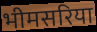
भीमसरिया